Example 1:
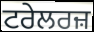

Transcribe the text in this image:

ਟਰੇਲਰਜ਼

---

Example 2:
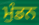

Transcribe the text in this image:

ਮੁੰਡਨ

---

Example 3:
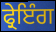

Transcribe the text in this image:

ਫ੍ਰੇਇੰਗ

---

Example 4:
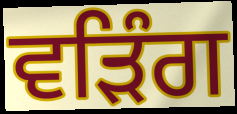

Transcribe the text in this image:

ਵੜਿੰਗ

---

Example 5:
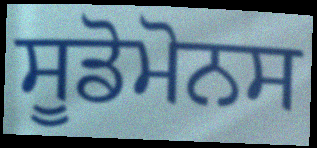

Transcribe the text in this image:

ਸੂਡੋਮੋਨਸ